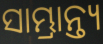
ସାମ୍ଭ୍ରାନ୍ତ୍ୟ